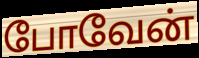
போவேன்